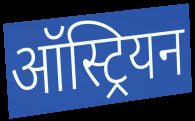
ऑस्ट्रियन